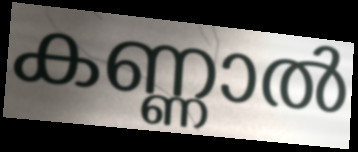
കണ്ണാൽ